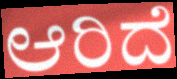
ಆರಿದೆ